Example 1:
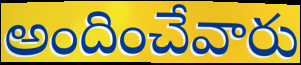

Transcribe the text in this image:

అందించేవారు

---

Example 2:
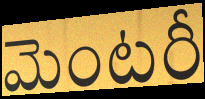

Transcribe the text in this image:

మెంటరీ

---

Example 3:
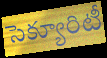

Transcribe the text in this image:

సెక్యూరిటీ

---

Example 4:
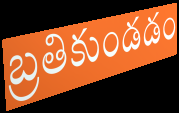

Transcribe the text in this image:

బ్రతికుండడం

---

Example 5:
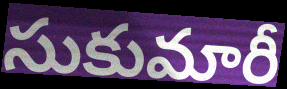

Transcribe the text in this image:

సుకుమారీ